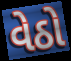
વેઠો